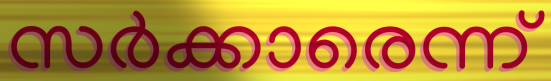
സർക്കാരെന്ന്